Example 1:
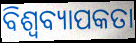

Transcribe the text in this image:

ବିଶ୍ୱବ୍ୟାପକତା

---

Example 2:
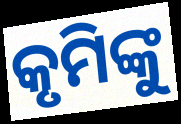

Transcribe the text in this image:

କୃମିଙ୍କୁ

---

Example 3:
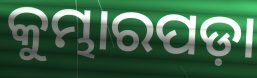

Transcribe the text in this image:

କୁମ୍ଭାରପଡ଼ା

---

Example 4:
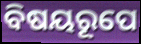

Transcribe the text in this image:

ବିଷୟରୂପେ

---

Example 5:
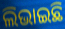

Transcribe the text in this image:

ଲିଭାଇଛି